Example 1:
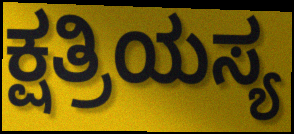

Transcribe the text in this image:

ಕ್ಷತ್ರಿಯಸ್ಯ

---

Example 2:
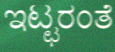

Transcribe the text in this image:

ಇಟ್ಟರಂತೆ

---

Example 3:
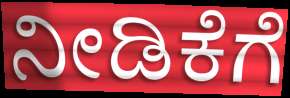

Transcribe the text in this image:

ನೀಡಿಕೆಗೆ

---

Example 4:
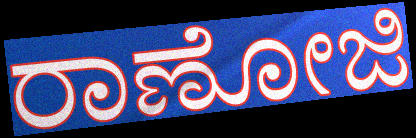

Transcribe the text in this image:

ರಾಣೋಜಿ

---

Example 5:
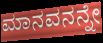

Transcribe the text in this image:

ಮಾನವನನ್ನೇ